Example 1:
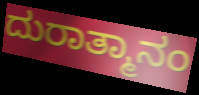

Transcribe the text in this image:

ದುರಾತ್ಮಾನಂ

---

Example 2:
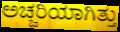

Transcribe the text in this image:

ಅಚ್ಚರಿಯಾಗಿತ್ತು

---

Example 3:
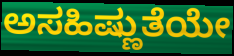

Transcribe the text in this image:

ಅಸಹಿಷ್ಣುತೆಯೇ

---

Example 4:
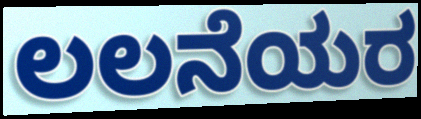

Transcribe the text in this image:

ಲಲನೆಯರ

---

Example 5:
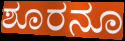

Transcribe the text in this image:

ಶೂರನೂ